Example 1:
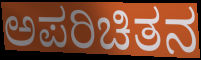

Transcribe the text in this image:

ಅಪರಿಚಿತನ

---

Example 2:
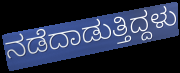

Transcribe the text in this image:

ನಡೆದಾಡುತ್ತಿದ್ದಳು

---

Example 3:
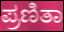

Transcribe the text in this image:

ಪ್ರಣಿತಾ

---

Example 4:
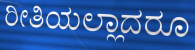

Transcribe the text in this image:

ರೀತಿಯಲ್ಲಾದರೂ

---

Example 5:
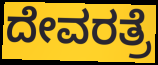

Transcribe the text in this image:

ದೇವರತ್ರೆ